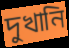
দুখানি